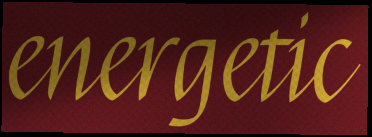
energetic